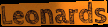
Leonards